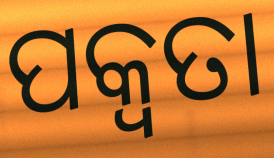
ପକ୍ୱତା